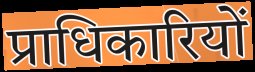
प्राधिकारियों